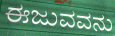
ಈಜುವವನು